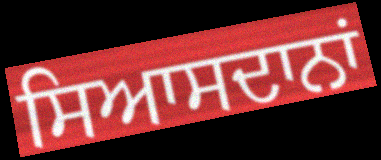
ਸਿਆਸਦਾਨਾਂ